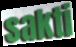
sakti